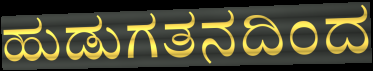
ಹುಡುಗತನದಿಂದ